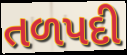
તળપદી